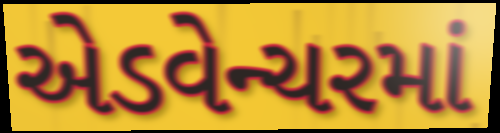
એડવેન્ચરમાં